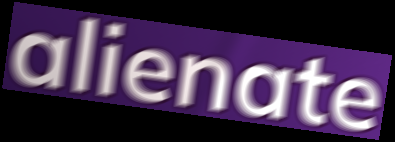
alienate